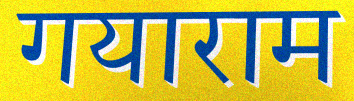
गयाराम